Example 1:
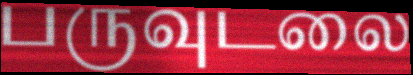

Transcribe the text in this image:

பருவுடலை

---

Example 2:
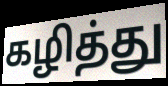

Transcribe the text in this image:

கழித்து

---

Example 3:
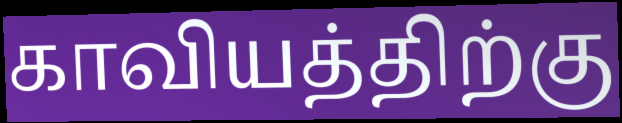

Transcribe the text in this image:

காவியத்திற்கு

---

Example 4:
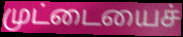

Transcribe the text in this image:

முட்டையைச்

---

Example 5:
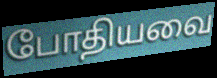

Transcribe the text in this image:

போதியவை